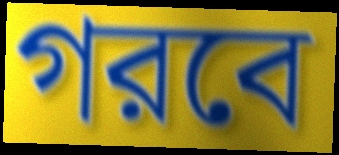
গরবে